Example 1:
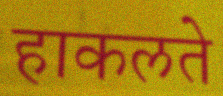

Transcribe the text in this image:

हाकलते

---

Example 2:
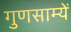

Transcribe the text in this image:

गुणसाम्यें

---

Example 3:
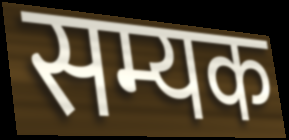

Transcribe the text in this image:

सम्‍यक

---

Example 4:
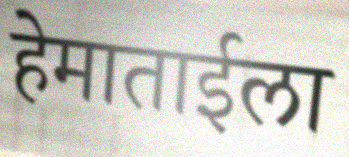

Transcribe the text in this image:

हेमाताईला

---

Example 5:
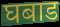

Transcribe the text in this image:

घबाड